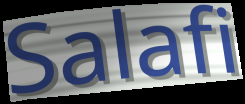
Salafi